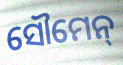
ସୌମେନ୍